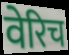
वेरिच